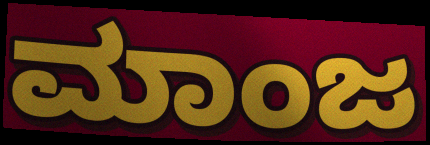
ಮಾಂಜ